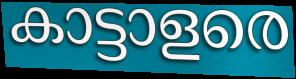
കാട്ടാളരെ